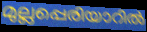
മുല്ലപ്പെരിയാറിൽ